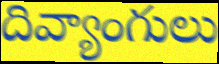
దివ్యాంగులు